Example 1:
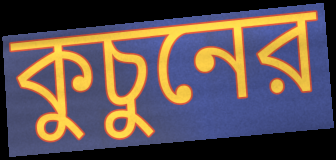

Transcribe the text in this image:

কুচুনের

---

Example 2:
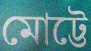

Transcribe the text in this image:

মোট্টে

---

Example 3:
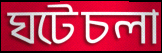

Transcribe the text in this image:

ঘটেচলা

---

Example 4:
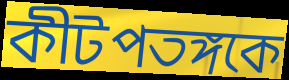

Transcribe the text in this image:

কীটপতঙ্গকে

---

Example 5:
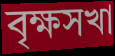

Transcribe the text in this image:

বৃক্ষসখা